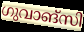
ഗുവാങ്സി